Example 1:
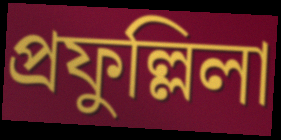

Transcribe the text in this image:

প্রফুল্লিলা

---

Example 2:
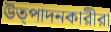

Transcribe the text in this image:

উত্পাদনকারীরা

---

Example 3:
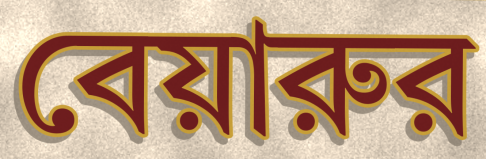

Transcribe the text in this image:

বেয়ারুর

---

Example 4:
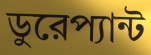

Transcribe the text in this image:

ডুরেপ্যান্ট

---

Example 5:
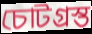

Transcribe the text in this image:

চোটগ্রস্ত